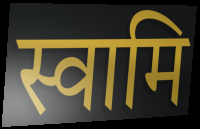
स्वामि